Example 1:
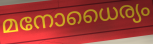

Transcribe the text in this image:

മനോധൈര്യം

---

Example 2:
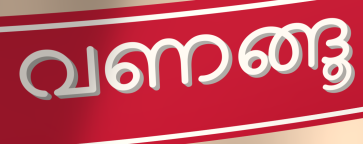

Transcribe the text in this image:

വണങ്ങൂ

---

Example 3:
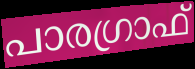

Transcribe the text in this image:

പാരഗ്രാഫ്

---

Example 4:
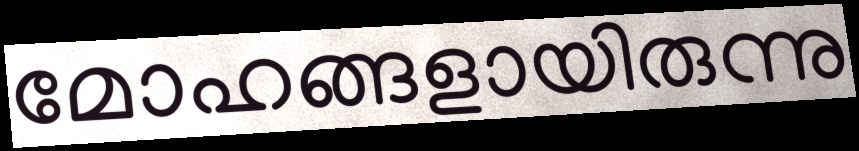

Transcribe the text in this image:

മോഹങ്ങളായിരുന്നു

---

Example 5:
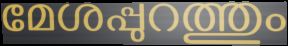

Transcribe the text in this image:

മേശപ്പുറത്തും